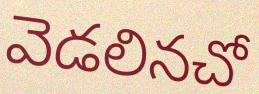
వెడలినచో